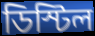
ডিস্টিল